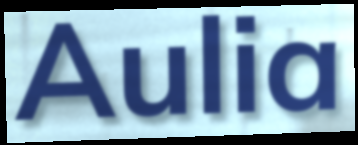
Aulia